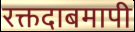
रक्तदाबमापी